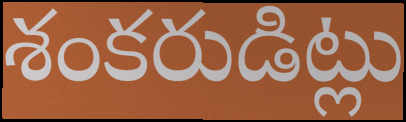
శంకరుడిట్లు